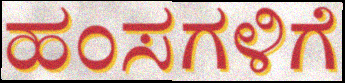
ಹಂಸಗಳಿಗೆ